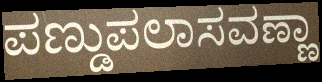
ಪಣ್ಡುಪಲಾಸವಣ್ಣಾ